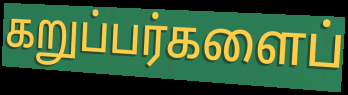
கறுப்பர்களைப்